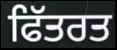
ਫਿੱਤਰਤ